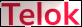
Telok